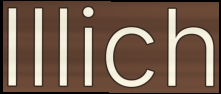
Illich